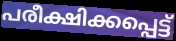
പരീക്ഷിക്കപ്പെട്ട്